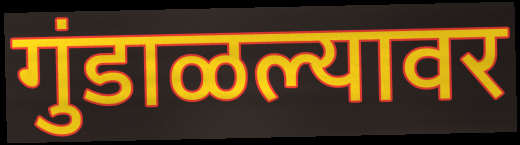
गुंडाळल्यावर